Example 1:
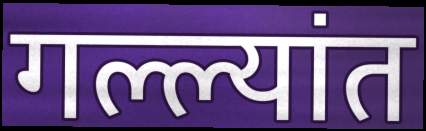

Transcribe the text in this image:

गल्ल्यांत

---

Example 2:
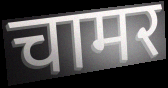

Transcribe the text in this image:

चामर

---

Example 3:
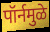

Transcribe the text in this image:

पॉर्नमुळे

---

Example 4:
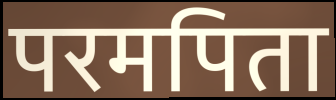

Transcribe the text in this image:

परमपिता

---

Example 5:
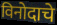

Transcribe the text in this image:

विनोदाचे